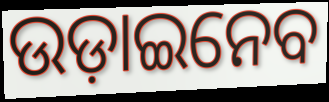
ଉଡ଼ାଇନେବ